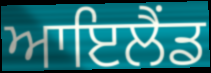
ਆਇਲੈੰਡ